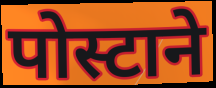
पोस्टाने